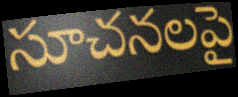
సూచనలపై